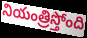
నియంత్రిస్తోంది